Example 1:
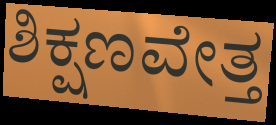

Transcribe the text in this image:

ಶಿಕ್ಷಣವೇತ್ತ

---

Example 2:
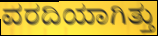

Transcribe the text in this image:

ವರದಿಯಾಗಿತ್ತು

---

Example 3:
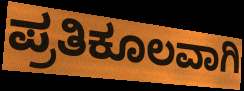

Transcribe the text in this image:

ಪ್ರತಿಕೂಲವಾಗಿ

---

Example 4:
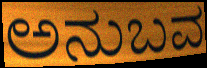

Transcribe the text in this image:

ಅನುಬವ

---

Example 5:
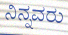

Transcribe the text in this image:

ನಿನ್ನವರು